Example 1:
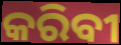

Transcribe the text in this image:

କରିବୀ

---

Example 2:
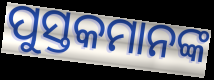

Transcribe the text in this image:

ପୁସ୍ତକମାନଙ୍କ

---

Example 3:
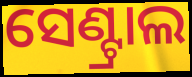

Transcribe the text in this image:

ସେଣ୍ଟ୍ରାଲ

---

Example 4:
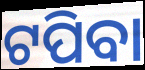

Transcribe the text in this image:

ଟପିବା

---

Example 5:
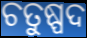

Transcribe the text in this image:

ଚତୁଷ୍ପଦ